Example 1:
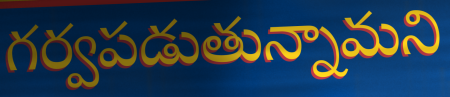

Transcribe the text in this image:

గర్వపడుతున్నామని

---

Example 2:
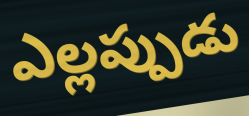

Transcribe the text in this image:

ఎల్లప్పుడు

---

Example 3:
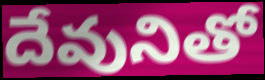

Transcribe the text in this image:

దేవునితో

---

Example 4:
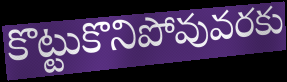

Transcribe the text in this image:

కొట్టుకొనిపోవువరకు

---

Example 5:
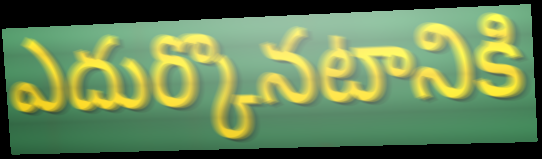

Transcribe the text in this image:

ఎదుర్కొనటానికి